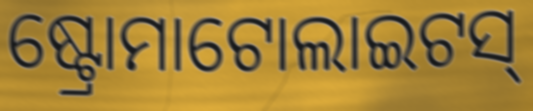
ଷ୍ଟ୍ରୋମାଟୋଲାଇଟସ୍